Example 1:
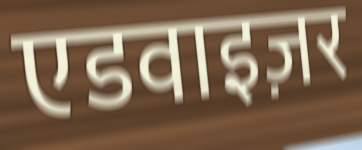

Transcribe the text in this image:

एडवाइज़र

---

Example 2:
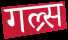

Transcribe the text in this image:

गल्र्स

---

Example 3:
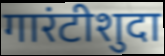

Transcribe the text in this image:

गारंटीशुदा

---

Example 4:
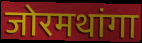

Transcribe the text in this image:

जोरमथांगा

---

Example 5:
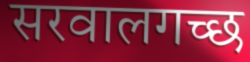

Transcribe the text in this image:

सरवालगच्छ